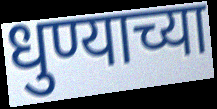
धुण्याच्या